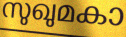
സുഖുമകാ